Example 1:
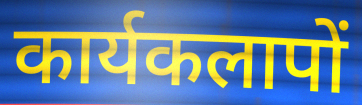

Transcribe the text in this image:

कार्यकलापों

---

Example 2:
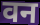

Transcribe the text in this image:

वन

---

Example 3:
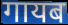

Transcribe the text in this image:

गायब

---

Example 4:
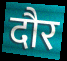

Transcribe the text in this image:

दौर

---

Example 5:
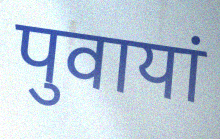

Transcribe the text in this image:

पुवायां